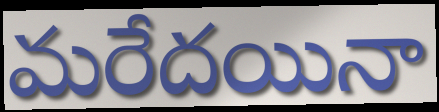
మరేదయినా